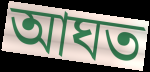
আঘত